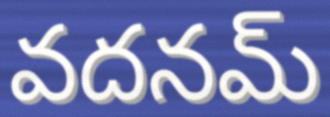
వదనమ్